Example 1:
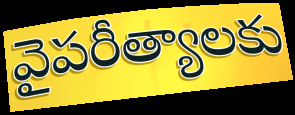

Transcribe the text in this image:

వైపరీత్యాలకు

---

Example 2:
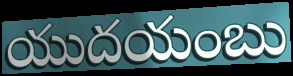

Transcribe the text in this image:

యుదయంబు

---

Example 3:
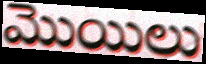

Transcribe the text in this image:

మొయిలు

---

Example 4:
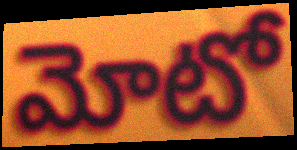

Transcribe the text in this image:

మోటో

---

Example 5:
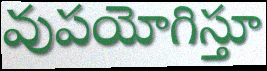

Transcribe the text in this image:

వుపయోగిస్తూ